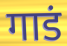
गाडं